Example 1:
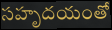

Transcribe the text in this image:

సహృదయంతో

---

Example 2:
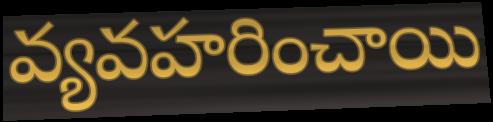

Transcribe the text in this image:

వ్యవహరించాయి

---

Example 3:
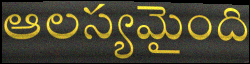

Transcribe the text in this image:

ఆలస్యమైంది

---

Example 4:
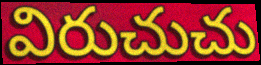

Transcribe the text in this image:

విరుచుచు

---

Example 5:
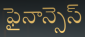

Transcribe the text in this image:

ఫైనాన్సెస్